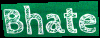
Bhate